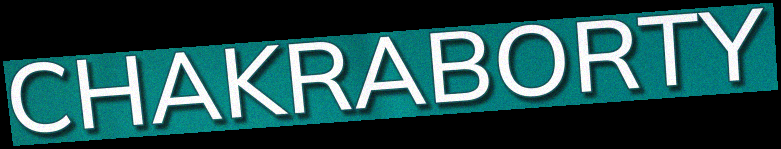
CHAKRABORTY